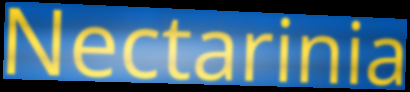
Nectarinia